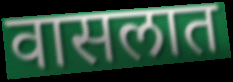
वासलात